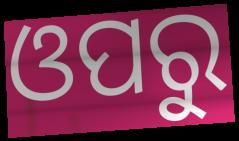
ଓପରୁ